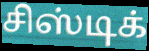
சிஸ்டிக்